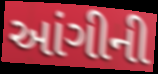
આંગીની